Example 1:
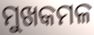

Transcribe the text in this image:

ମୁଖକମଳ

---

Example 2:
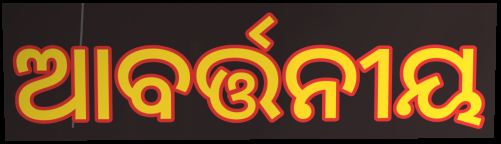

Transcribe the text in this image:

ଆବର୍ତ୍ତନୀୟ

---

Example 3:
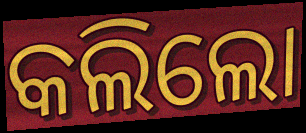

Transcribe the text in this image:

କଲିଲୋ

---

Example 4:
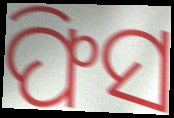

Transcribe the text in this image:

ଫିସ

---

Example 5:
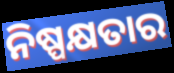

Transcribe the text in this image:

ନିଷ୍ପକ୍ଷତାର